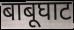
बाबूघाट